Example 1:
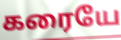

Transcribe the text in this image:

கரையே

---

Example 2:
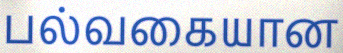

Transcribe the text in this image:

பல்வகையான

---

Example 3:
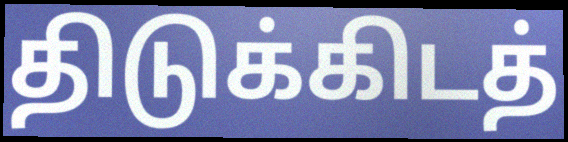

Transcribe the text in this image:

திடுக்கிடத்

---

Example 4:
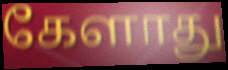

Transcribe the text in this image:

கேளாது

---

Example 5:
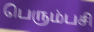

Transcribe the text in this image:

பெரும்பசி